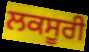
ਲਕਸੂਰੀ